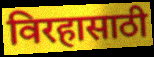
विरहासाठी